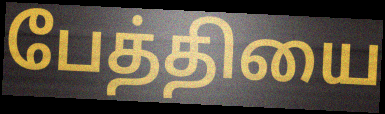
பேத்தியை